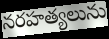
నరహత్యలును